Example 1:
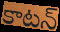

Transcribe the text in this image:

కాటన్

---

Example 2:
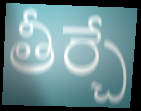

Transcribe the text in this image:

తీర్చే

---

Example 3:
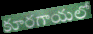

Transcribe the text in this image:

కూరగాయలో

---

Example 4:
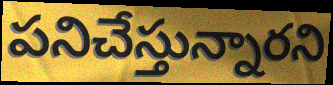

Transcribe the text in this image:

పనిచేస్తున్నారని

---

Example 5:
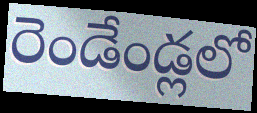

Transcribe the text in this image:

రెండేండ్లలో